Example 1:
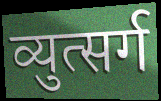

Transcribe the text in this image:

व्युत्सर्ग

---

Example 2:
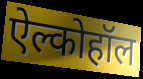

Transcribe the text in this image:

ऐल्कोहॉल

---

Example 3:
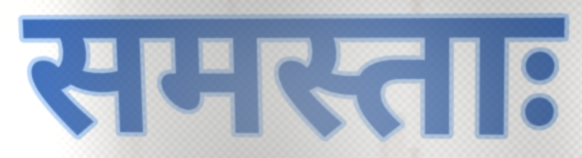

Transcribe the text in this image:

समस्ताः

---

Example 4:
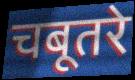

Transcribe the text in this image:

चबूतरे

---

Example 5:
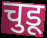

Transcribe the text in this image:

चुडू